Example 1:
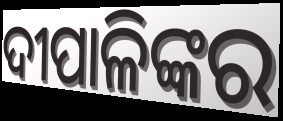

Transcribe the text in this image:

ଦୀପାଳିଙ୍କର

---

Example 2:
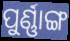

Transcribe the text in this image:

ପୁର୍ଣ୍ଣାଙ୍ଗ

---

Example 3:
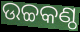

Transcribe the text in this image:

ଉଚ୍ଚକଣ୍ଠ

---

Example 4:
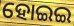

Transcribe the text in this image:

ହୋଇଇ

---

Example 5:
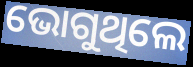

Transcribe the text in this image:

ଭୋଗୁଥିଲେ